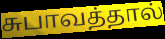
சுபாவத்தால்